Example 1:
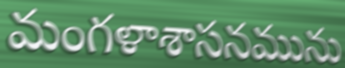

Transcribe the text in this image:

మంగళాశాసనమును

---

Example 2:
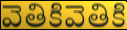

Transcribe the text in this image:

వెతికివెతికి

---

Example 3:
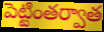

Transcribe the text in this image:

పెట్టింతర్వాత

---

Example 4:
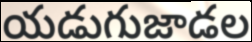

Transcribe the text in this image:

యడుగుజాడల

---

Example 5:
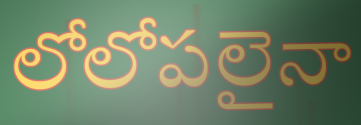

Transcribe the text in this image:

లోలోపలైనా